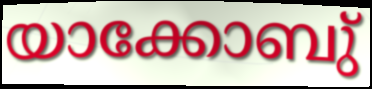
യാക്കോബു്